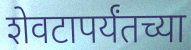
शेवटापर्यंतच्या